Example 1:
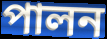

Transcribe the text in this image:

পালন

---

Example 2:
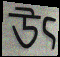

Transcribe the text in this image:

উৎ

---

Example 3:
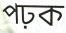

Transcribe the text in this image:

পঢ়ক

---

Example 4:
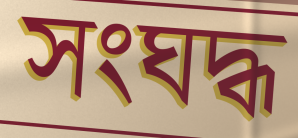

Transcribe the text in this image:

সংঘদ্ধ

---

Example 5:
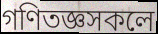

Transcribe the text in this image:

গণিতজ্ঞসকলে